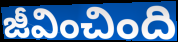
జీవించింది